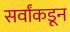
सर्वांकडून